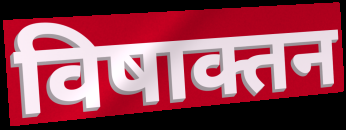
विषाक्तन